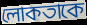
লোকতাকে